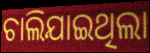
ଚାଲିଯାଇଥିଲା